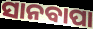
ସାନବାପା